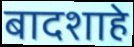
बादशाहे